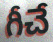
గీచే